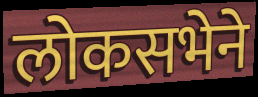
लोकसभेने